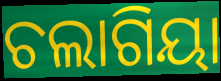
ଚଲାଗିୟା